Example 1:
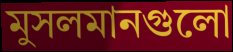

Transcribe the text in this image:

মুসলমানগুলো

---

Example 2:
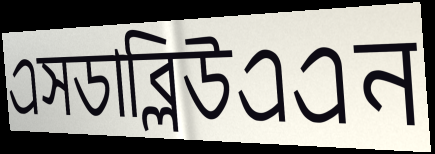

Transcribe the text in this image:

এসডাব্লিউএএন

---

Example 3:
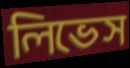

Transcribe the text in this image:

লিভেস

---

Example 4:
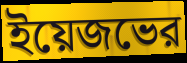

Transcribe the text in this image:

ইয়েজভের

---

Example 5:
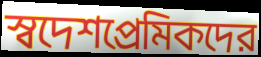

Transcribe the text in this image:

স্বদেশপ্রেমিকদের